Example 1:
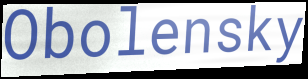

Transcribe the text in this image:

Obolensky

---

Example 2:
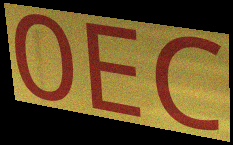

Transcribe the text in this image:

OEC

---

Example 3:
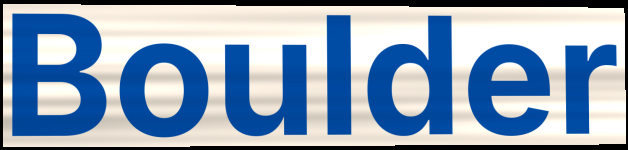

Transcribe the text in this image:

Boulder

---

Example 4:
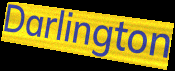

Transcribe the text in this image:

Darlington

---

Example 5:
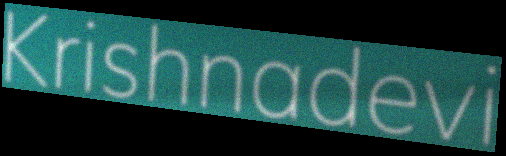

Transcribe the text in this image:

Krishnadevi